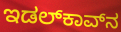
ಇಡಲ್‌ಕಾವ್‌ನ